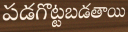
పడగొట్టబడతాయి